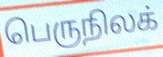
பெருநிலக்